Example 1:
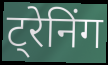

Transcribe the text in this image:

ट्रेनिंग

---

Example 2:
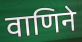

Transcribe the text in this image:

वाणिने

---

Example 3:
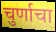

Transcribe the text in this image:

चुर्णाचा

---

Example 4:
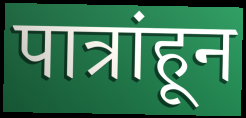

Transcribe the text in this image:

पात्रांहून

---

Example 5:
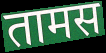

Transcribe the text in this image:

तामस